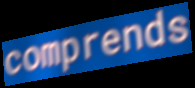
comprends